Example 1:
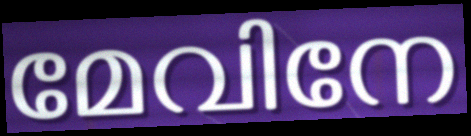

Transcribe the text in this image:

മേവിനേ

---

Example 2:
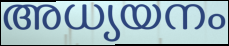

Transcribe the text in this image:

അധ്യയനം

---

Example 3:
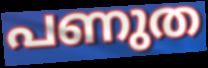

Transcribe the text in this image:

പണുത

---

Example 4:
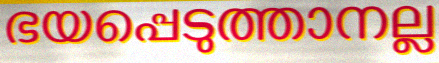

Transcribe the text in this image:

ഭയപ്പെടുത്താനല്ല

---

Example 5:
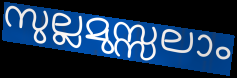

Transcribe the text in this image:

സുല്ലമുസ്സലാം